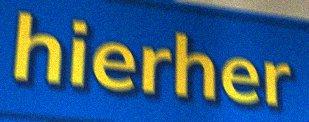
hierher